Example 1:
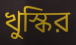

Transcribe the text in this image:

খুস্কির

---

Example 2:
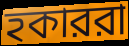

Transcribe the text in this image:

হকাররা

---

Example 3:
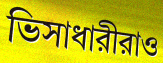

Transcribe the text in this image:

ভিসাধারীরাও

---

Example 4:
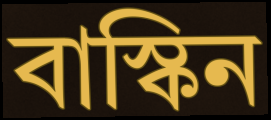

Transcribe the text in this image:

বাস্কিন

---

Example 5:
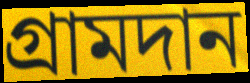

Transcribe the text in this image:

গ্রামদান